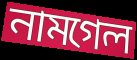
নামগেল